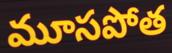
మూసపోత